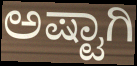
ಅಷ್ಟಾಗಿ